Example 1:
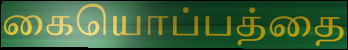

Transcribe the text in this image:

கையொப்பத்தை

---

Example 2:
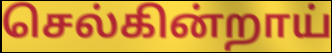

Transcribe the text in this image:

செல்கின்றாய்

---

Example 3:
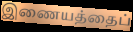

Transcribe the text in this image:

இணையத்தைப்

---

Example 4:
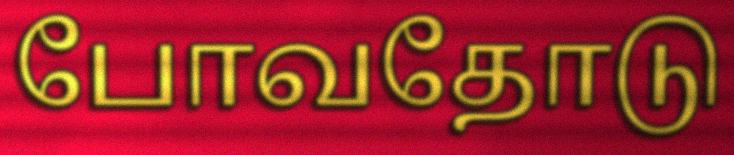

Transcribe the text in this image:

போவதோடு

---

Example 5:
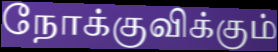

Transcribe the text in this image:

நோக்குவிக்கும்